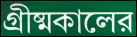
গ্রীষ্মকালের